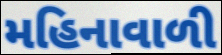
મહિનાવાળી